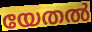
യേതൽ